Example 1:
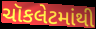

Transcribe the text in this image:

ચૉકલેટમાંથી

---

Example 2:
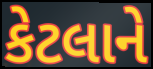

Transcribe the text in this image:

કેટલાને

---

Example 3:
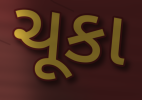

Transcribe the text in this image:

ચૂકા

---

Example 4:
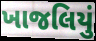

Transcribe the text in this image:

ખાજલિયું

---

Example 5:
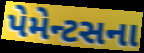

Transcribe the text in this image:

પેમેન્ટસના